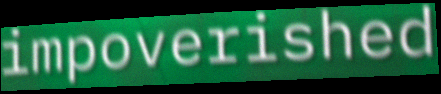
impoverished